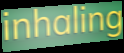
inhaling